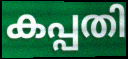
കപ്പതി